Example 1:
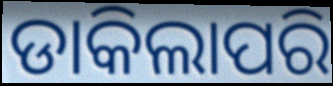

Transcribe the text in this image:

ଡାକିଲାପରି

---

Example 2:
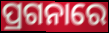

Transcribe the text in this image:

ପ୍ରଗନାରେ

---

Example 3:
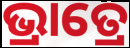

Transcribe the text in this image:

ଭ୍ରାତ୍ରେ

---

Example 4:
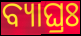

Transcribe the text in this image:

ବ୍ୟାଘ୍ରଃ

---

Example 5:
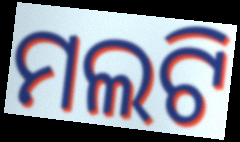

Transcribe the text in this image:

ମଲଟି